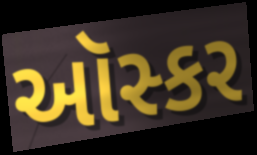
ઑસ્કર